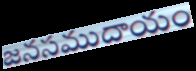
జనసముదాయం